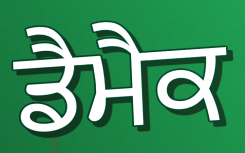
ਡੈਮੈਕ